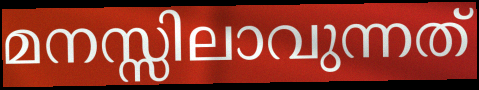
മനസ്സിലാവുന്നത്